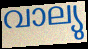
വാല്യു